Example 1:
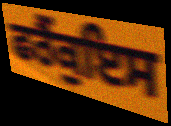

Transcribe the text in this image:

ਫਰੈਂਕੁਇਸ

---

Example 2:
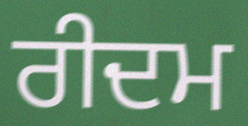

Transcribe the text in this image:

ਰੀਦਮ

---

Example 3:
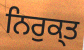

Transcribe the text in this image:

ਨਿਰੁਕ੍ਤ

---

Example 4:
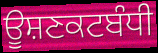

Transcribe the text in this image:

ਊਸ਼ਣਕਟਬੰਧੀ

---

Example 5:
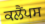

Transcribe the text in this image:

ਕਲੈਂਪਸ